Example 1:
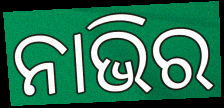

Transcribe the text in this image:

ନାଭିର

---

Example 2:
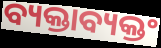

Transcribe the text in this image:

ବ୍ୟକ୍ତାବ୍ୟକ୍ତଂ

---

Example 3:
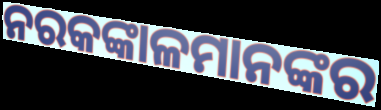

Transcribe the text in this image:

ନରକଙ୍କାଳମାନଙ୍କର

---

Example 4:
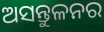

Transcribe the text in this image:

ଅସନ୍ତୁଳନର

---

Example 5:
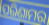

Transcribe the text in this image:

ପରିଣାମର